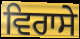
ਵਿਰਾਸੇ